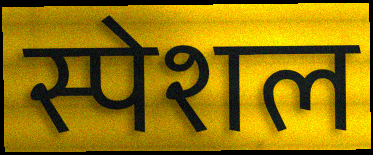
स्‍पेशल